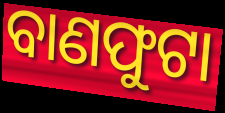
ବାଣଫୁଟା